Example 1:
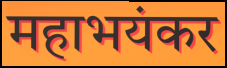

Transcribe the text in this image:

महाभयंकर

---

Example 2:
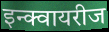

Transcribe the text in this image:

इन्क्वायरीज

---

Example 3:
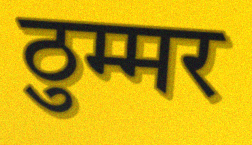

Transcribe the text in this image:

ठुम्मर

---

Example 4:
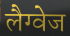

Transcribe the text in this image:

लैग्वेज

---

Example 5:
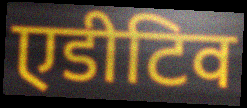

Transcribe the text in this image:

एडीटिव